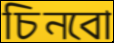
চিনবো